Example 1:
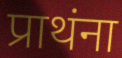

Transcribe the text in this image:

प्राथंना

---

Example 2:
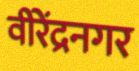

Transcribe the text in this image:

वीरेंद्रनगर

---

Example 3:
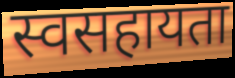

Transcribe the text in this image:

स्वसहायता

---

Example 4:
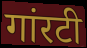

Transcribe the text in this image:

गांरटी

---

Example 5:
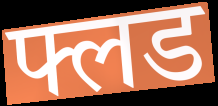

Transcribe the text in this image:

फ्लड